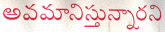
అవమానిస్తున్నారని